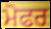
ਮੋਫਰ